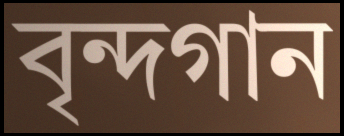
বৃন্দগান